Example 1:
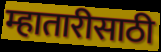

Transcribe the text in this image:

म्हातारीसाठी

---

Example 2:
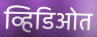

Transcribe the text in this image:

व्हिडिओत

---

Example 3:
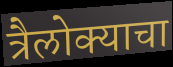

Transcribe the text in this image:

त्रैलोक्याचा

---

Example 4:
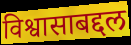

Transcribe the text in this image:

विश्वासाबद्दल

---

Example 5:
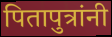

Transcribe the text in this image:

पितापुत्रांनी